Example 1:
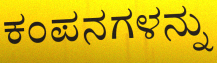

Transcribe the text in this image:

ಕಂಪನಗಳನ್ನು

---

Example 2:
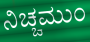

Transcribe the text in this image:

ನಿಚ್ಚಮುಂ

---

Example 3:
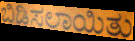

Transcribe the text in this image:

ಬಿಡಿಸಲಾಯಿತು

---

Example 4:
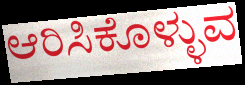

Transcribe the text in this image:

ಆರಿಸಿಕೊಳ್ಳುವ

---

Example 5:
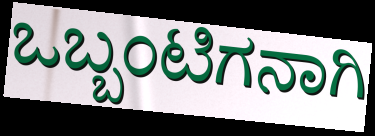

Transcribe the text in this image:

ಒಬ್ಬಂಟಿಗನಾಗಿ